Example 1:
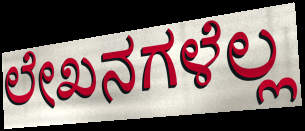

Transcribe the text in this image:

ಲೇಖನಗಳೆಲ್ಲ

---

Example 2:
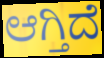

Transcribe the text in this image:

ಆಗ್ತಿದೆ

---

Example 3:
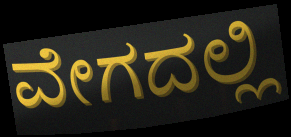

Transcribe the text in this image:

ವೇಗದಲ್ಲಿ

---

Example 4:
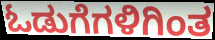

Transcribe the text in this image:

ಓಡುಗೆಗಳಿಗಿಂತ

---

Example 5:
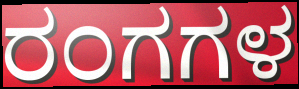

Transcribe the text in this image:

ರಂಗಗಳ